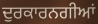
ਦੁਰਕਾਰਨਗੀਆਂ